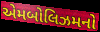
એમબોલિઝમનો